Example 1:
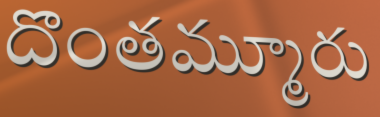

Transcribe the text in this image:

దొంతమ్మూరు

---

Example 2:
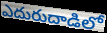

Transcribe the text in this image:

ఎదురుదాడిలో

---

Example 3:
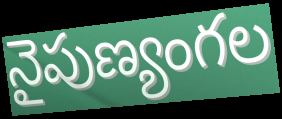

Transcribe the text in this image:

నైపుణ్యంగల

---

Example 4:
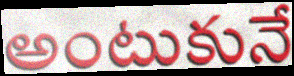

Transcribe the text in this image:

అంటుకునే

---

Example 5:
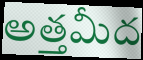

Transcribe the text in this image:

అత్తమీద